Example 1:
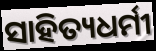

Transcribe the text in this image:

ସାହିତ୍ୟଧର୍ମୀ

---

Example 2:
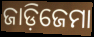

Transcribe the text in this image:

ଜାଡ଼ିଜେମା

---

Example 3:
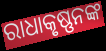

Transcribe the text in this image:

ରାଧାକୃଷ୍ଣନଙ୍କ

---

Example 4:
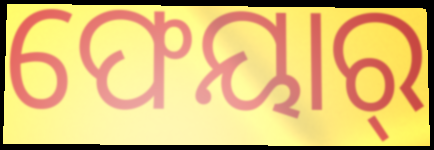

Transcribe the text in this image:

ଫେୟାର୍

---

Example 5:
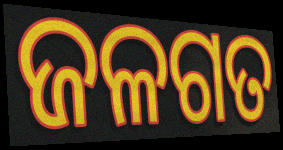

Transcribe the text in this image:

ଜଳଗତ